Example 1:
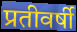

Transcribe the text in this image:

प्रतीवर्षी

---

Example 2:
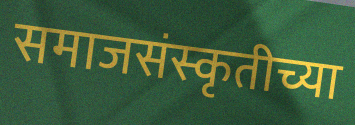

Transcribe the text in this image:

समाजसंस्कृतीच्या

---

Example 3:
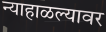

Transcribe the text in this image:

न्याहाळल्यावर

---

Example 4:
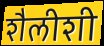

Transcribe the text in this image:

शैलीशी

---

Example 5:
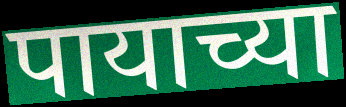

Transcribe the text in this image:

पायाच्या